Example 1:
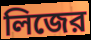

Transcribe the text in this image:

লিজের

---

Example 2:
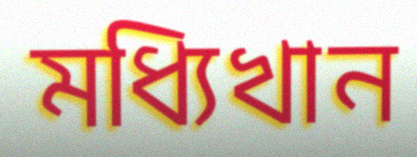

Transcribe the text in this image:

মধ্যিখান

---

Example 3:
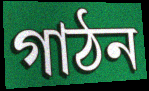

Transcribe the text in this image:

গাঠন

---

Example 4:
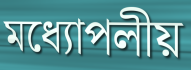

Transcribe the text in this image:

মধ্যোপলীয়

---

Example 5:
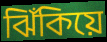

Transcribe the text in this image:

ঝিঁকিয়ে